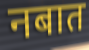
नबात